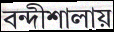
বন্দীশালায়